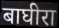
बाघीरा